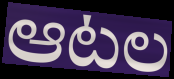
ఆటల